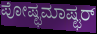
ಪೋಷ್ಟಮಾಷ್ಟರ್